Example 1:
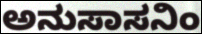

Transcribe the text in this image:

ಅನುಸಾಸನಿಂ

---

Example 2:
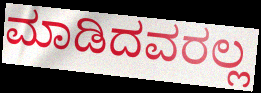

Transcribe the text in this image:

ಮಾಡಿದವರಲ್ಲ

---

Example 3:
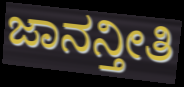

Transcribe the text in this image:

ಜಾನನ್ತೀತಿ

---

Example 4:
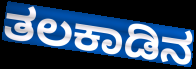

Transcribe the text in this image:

ತಲಕಾಡಿನ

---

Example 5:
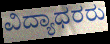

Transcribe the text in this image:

ವಿದ್ಯಾಧರರು